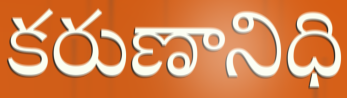
కరుణానిధి